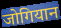
जोगियान